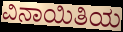
ವಿನಾಯಿತಿಯ